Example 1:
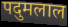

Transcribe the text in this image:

पदुमलाल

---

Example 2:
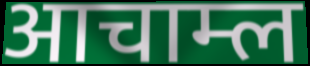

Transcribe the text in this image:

आचाम्ल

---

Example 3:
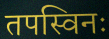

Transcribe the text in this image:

तपस्विनः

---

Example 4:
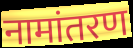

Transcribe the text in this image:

नामांतरण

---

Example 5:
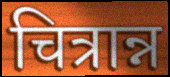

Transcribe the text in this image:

चित्रान्न